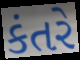
કંતરે